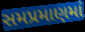
સમપ્રમાણમાં